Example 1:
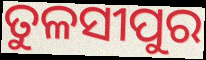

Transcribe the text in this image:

ତୁଳସୀପୁର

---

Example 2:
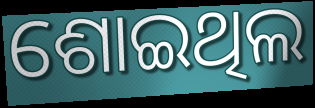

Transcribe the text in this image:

ଶୋଇଥିଲ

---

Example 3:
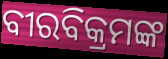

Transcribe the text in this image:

ବୀରବିକ୍ରମଙ୍କ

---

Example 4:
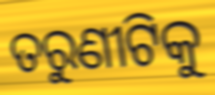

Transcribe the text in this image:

ତରୁଣୀଟିକୁ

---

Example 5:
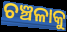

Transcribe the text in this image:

ଚଞ୍ଚଳାକୁ